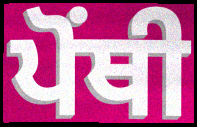
ਪੋਂਥੀ